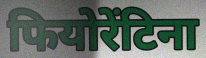
फियोरेंटिना